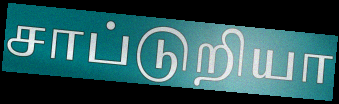
சாப்டுறியா